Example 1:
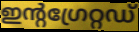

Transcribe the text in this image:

ഇന്റഗ്രേറ്റഡ്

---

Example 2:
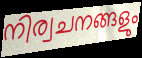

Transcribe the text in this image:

നിര്വചനങ്ങളും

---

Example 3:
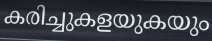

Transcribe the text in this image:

കരിച്ചുകളയുകയും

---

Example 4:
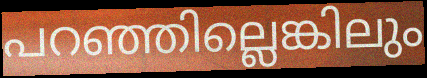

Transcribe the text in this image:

പറഞ്ഞില്ലെങ്കിലും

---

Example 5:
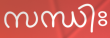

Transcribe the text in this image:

സന്ധിഃ